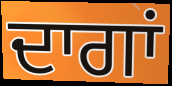
ਦਾਗਾਂ